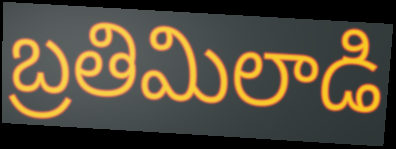
బ్రతిమిలాడి